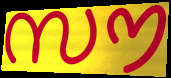
സൗ